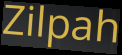
Zilpah